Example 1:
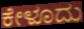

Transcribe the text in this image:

ಕೇಳೂದು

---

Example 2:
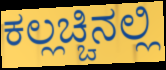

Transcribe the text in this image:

ಕಲ್ಲಚ್ಚಿನಲ್ಲಿ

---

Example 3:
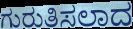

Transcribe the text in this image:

ಗುರುತಿಸಲಾದ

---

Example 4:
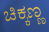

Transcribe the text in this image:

ಚಿಕ್ಕಣ್ಣ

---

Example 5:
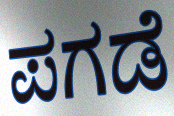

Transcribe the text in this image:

ಪಗಡೆ